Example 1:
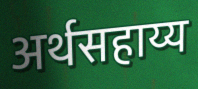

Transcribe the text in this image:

अर्थसहाय्य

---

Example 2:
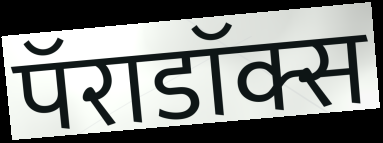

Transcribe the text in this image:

पॅराडॉक्स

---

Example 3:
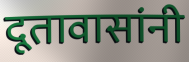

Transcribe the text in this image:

दूतावासांनी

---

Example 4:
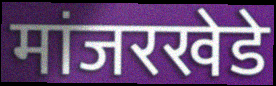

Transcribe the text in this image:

मांजरखेडे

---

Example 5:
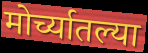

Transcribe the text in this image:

मोर्च्यातल्या